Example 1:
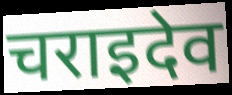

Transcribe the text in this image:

चराइदेव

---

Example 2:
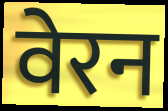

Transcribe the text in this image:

वेरन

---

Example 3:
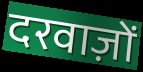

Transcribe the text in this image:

दरवाज़ों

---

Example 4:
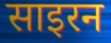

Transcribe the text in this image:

साइरन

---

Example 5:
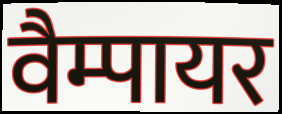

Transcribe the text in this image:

वैम्पायर